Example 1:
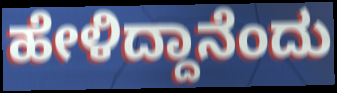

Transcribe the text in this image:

ಹೇಳಿದ್ದಾನೆಂದು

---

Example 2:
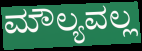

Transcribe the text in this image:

ಮೌಲ್ಯವಲ್ಲ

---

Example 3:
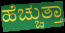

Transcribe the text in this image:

ಹೆಚ್ಚುತ್ತಾ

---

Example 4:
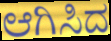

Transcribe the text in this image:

ಆಗಿಸಿದ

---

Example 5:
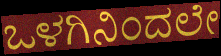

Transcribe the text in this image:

ಒಳಗಿನಿಂದಲೇ